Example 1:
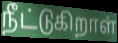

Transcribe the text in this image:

நீட்டுகிறாள்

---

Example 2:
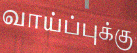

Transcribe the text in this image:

வாய்ப்புக்கு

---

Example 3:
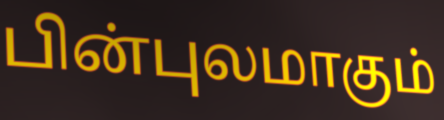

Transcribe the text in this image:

பின்புலமாகும்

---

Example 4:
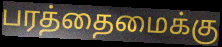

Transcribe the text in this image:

பரத்தைமைக்கு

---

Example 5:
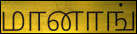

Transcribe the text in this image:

மானாங்